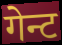
गेन्ट